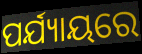
ପର୍ଯ୍ଯାୟରେ